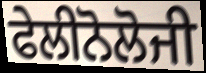
ਫੇਲੀਨੋਲੋਜੀ